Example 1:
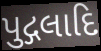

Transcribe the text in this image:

પુદ્ગલાદિ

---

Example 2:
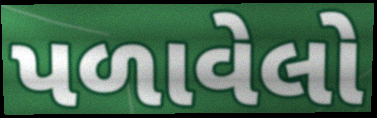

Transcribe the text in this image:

પળાવેલો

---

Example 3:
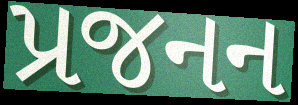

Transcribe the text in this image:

પ્રજનન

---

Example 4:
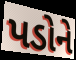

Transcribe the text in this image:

પડોને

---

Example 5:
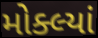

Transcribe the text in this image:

મોક્લ્યાં